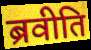
ब्रवीति